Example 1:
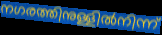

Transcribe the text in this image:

നഗരത്തിനുള്ളിൽനിന്ന്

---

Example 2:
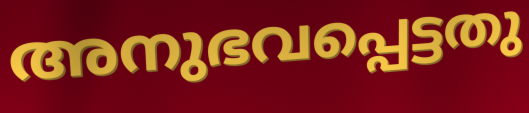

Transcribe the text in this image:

അനുഭവപ്പെട്ടതു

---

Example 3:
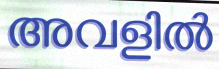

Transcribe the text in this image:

അവളിൽ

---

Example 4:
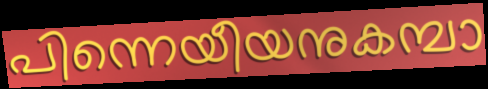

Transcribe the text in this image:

പിന്നെയീയനുകമ്പാ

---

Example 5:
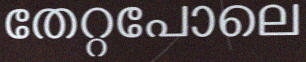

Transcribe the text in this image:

തേറ്റപോലെ